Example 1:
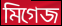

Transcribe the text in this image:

মিগেজ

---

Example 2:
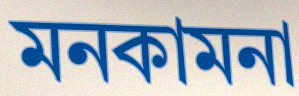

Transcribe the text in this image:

মনকামনা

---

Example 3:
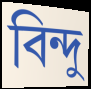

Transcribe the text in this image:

বিন্দু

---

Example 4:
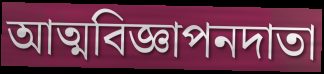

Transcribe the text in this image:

আত্মবিজ্ঞাপনদাতা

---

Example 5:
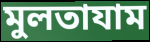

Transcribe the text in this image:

মুলতাযাম